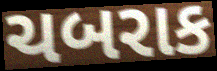
ચબરાક